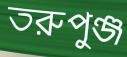
তরুপুঞ্জ